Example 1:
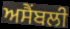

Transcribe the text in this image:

ਅਸੈਂਬਲੀ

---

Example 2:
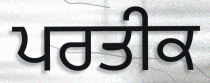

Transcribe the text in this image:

ਪਰਤੀਕ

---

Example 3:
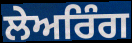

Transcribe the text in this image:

ਲੇਅਰਿੰਗ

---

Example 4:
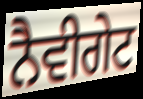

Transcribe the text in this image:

ਨੈਵੀਗੇਟ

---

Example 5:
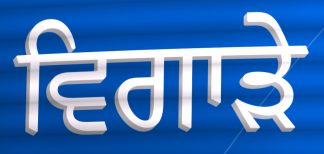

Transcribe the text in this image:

ਵਿਗਾੜੇ